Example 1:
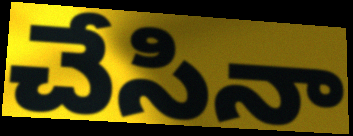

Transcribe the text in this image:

చేసినా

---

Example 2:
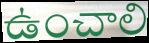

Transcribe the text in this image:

ఉంచాలి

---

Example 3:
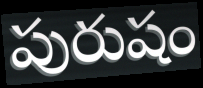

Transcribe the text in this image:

పురుషం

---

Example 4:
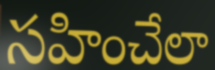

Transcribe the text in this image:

సహించేలా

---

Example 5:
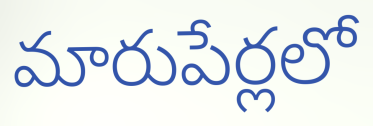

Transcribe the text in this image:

మారుపేర్లలో